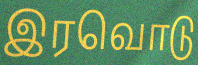
இரவொடு